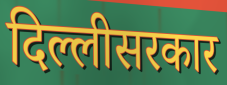
दिल्लीसरकार